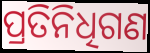
ପ୍ରତିନିଧିଗଣ